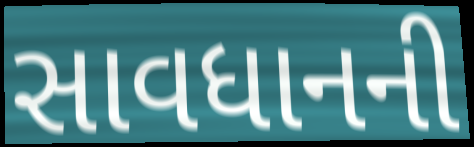
સાવધાનની